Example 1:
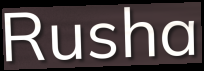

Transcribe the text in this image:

Rusha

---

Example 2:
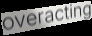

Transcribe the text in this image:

overacting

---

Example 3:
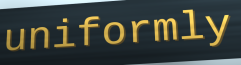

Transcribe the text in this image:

uniformly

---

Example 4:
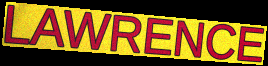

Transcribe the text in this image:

LAWRENCE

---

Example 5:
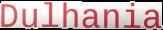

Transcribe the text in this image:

Dulhania